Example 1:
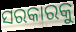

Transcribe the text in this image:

ସରକାରକୁ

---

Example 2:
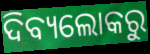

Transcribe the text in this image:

ଦିବ୍ୟଲୋକରୁ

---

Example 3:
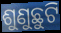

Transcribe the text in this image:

ଶୁଣୁଛୁଟି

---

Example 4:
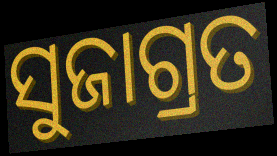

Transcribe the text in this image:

ସୁଜାଗ୍ରତ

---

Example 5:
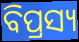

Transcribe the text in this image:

ବିପ୍ରସ୍ୟ